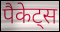
पैकेट्स